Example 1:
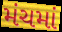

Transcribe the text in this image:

મંચમાં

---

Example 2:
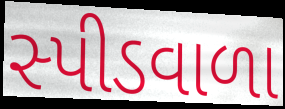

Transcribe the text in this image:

સ્પીડવાળા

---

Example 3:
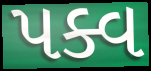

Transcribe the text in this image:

પક્વ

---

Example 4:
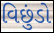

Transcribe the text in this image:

વિછુંડો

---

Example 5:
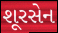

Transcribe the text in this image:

શૂરસેન